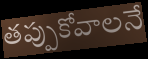
తప్పుకోవాలనే